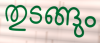
തുടങ്ങും